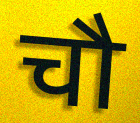
चौ